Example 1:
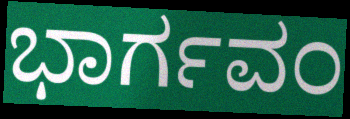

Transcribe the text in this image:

ಭಾರ್ಗವಂ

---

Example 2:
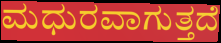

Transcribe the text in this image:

ಮಧುರವಾಗುತ್ತದೆ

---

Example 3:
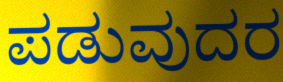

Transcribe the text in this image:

ಪಡುವುದರ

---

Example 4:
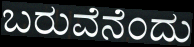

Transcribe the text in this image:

ಬರುವೆನೆಂದು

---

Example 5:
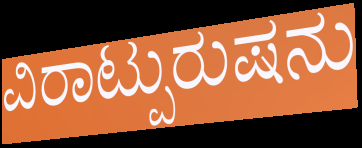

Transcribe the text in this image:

ವಿರಾಟ್ಪುರುಷನು